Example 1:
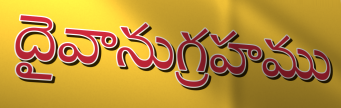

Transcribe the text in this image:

దైవానుగ్రహము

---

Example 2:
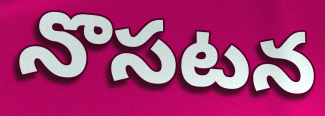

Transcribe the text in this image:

నొసటన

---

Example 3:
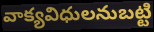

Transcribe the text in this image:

వాక్యవిధులనుబట్టి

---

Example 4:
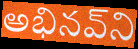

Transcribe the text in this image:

అభినవ్‌ని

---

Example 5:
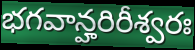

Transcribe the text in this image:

భగవాన్హరిరీశ్వరః